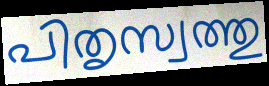
പിതൃസ്വത്തു